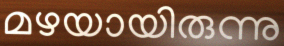
മഴയായിരുന്നു